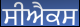
ਸੀਐਕਸ